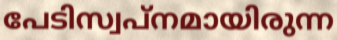
പേടിസ്വപ്നമായിരുന്ന